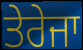
ਤੇਰੇਜਾ